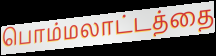
பொம்மலாட்டத்தை